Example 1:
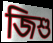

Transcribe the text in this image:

জিশু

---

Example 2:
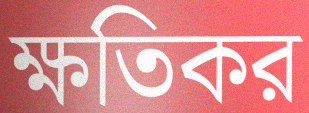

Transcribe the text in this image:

ক্ষতিকর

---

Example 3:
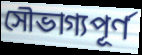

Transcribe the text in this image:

সৌভাগ্যপূর্ণ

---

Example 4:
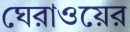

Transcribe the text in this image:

ঘেরাওয়ের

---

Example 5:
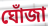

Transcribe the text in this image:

ঘোঁজা